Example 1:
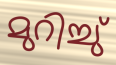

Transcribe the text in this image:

മുറിച്ചു്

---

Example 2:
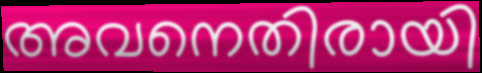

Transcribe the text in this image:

അവനെതിരായി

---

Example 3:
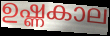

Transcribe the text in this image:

ഉഷ്ണകാല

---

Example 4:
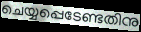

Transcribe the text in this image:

ചെയ്യപ്പെടേണ്ടതിനു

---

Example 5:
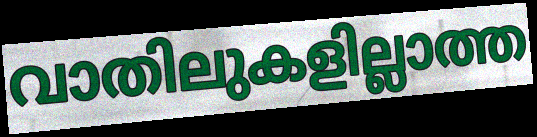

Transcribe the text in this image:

വാതിലുകളില്ലാത്ത